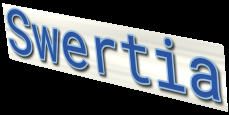
Swertia